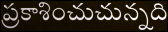
ప్రకాశించుచున్నది